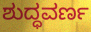
ಶುದ್ಧವರ್ಣ